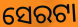
ସେରଟା